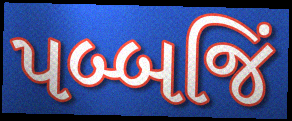
પબ્બજિં